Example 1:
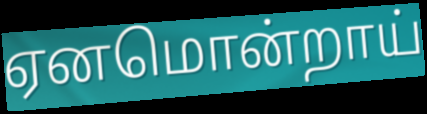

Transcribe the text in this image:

ஏனமொன்றாய்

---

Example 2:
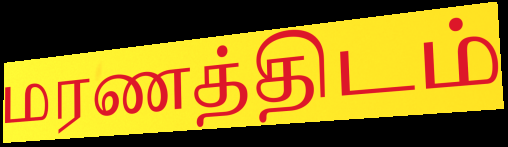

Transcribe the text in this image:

மரணத்திடம்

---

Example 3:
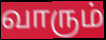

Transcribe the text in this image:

வாரும்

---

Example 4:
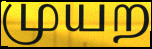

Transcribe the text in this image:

முயற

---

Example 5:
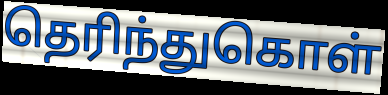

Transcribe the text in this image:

தெரிந்துகொள்